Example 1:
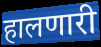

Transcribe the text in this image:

हालणारी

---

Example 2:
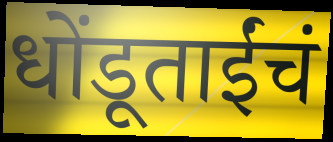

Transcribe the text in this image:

धोंडूताईंचं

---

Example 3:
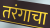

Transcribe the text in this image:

तरंगाचा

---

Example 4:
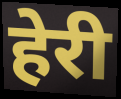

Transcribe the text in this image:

हेरी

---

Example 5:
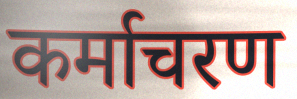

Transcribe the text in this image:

कर्माचरण